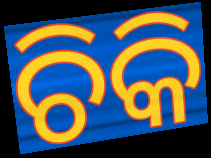
ଚିକି